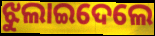
ଝୁଲାଇଦେଲେ